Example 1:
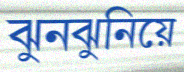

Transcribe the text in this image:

ঝুনঝুনিয়ে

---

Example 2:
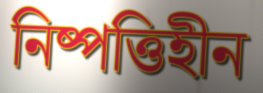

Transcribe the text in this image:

নিষ্পত্তিহীন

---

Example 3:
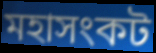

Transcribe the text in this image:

মহাসংকট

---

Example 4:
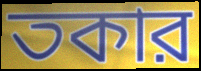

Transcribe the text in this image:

তকার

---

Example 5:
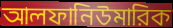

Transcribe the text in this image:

আলফানিউমারিক